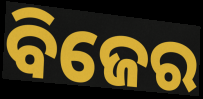
ବିଜେର